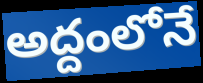
అద్దంలోనే